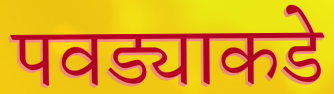
पवड्याकडे